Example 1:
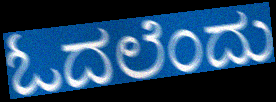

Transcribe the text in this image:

ಓದಲೆಂದು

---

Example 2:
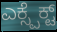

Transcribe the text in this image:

ಎಕ್ಸ್ಪೆಕ್ಟ್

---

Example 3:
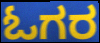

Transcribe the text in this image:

ಓಗರ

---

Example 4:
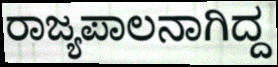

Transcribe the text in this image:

ರಾಜ್ಯಪಾಲನಾಗಿದ್ದ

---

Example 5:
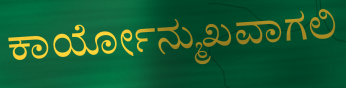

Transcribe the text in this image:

ಕಾರ್ಯೋನ್ಮುಖವಾಗಲಿ